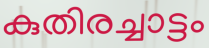
കുതിരച്ചാട്ടം